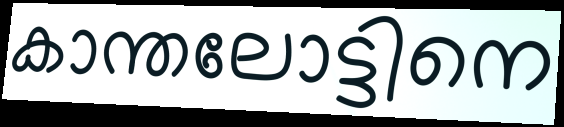
കാന്തലോട്ടിനെ